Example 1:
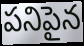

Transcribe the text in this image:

పనిపైన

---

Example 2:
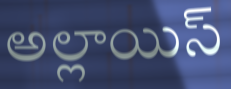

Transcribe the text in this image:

అల్లాయిస్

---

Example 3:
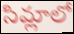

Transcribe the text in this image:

సిమ్లాలో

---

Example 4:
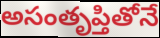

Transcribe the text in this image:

అసంతృప్తితోనే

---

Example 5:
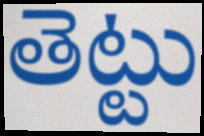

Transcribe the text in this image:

తెట్టు